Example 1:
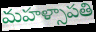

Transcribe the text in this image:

మహళ్సాపతి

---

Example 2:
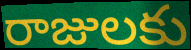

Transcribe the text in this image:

రాజులకు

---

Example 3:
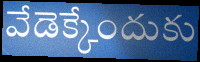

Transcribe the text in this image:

వేడెక్కేందుకు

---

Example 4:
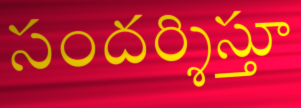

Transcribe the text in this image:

సందర్శిస్తూ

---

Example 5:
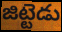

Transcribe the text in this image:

జిట్టెడు